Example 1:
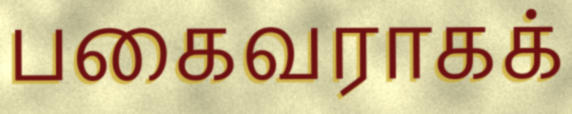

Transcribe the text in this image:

பகைவராகக்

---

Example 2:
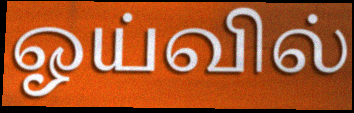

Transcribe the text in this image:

ஓய்வில்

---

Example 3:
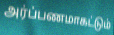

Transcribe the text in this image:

அர்ப்பணமாகட்டும்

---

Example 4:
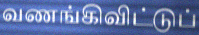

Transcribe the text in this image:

வணங்கிவிட்டுப்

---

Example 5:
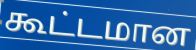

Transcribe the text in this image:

கூட்டமான